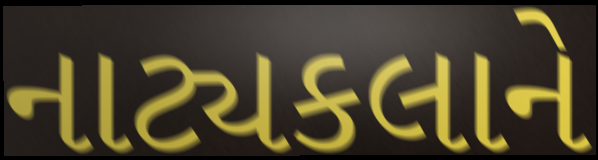
નાટ્યકલાને